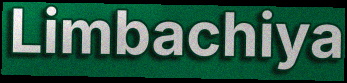
Limbachiya